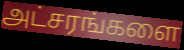
அட்சரங்களை